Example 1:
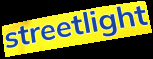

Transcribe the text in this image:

streetlight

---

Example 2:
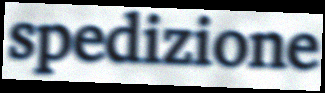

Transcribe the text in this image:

spedizione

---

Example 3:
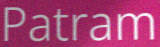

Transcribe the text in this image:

Patram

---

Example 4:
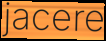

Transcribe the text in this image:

jacere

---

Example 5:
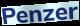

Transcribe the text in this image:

Penzer